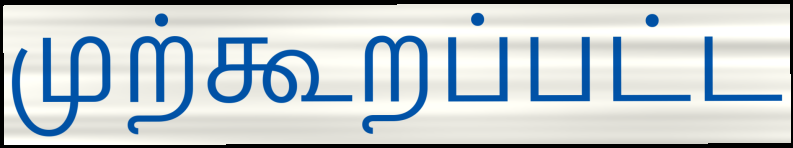
முற்கூறப்பட்ட